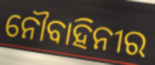
ନୌବାହିନୀର